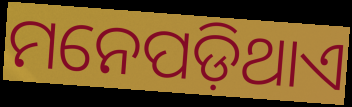
ମନେପଡ଼ିଥାଏ